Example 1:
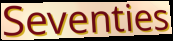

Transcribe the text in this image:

Seventies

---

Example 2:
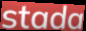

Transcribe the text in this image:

stada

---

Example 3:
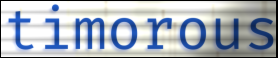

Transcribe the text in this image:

timorous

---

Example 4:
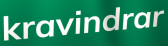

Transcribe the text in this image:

kravindrar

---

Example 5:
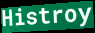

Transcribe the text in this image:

Histroy